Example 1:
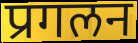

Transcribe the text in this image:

प्रगलन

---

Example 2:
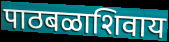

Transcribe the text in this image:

पाठबळाशिवाय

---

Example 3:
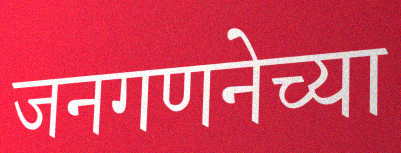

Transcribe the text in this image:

जनगणनेच्या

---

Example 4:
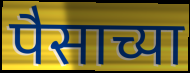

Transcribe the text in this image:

पैसाच्या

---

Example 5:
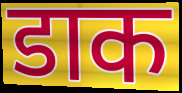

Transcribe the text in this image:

डाक